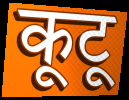
कूटू